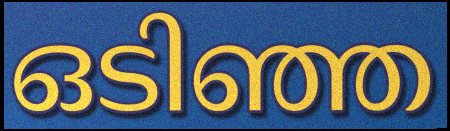
ഒടിഞ്ഞ